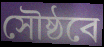
সৌষ্ঠবে